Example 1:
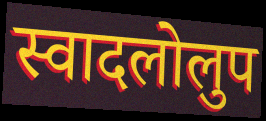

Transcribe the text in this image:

स्वादलोलुप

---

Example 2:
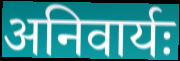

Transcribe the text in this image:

अनिवार्यः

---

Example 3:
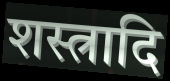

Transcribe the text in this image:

शस्त्रादि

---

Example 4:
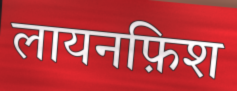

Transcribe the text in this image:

लायनफ़िश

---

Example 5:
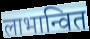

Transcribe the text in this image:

लाभान्वित